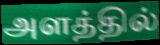
அளத்தில்